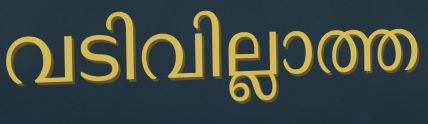
വടിവില്ലാത്ത